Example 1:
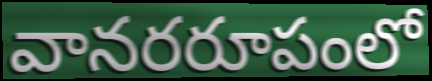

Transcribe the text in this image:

వానరరూపంలో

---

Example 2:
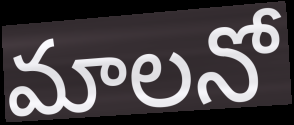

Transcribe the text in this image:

మాలనో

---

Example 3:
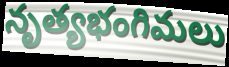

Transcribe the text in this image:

నృత్యభంగిమలు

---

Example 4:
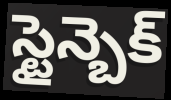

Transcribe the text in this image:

స్టైన్బెక్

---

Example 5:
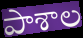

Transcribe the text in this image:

పాశాల